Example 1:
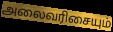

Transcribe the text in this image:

அலைவரிசையும்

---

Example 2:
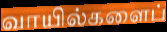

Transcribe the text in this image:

வாயில்களைப்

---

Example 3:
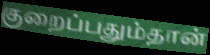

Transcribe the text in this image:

குறைப்பதும்தான்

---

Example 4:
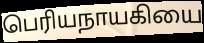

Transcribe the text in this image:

பெரியநாயகியை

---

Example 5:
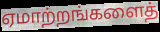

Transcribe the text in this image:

ஏமாற்றங்களைத்